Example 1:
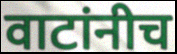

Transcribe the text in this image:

वाटांनीच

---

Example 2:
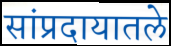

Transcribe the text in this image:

सांप्रदायातले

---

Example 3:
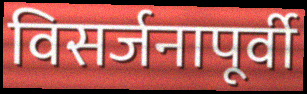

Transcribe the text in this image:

विसर्जनापूर्वी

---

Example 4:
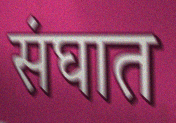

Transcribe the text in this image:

संघात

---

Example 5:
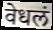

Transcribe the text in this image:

वेधलं